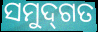
ସମୁଦ୍‌ଗତ